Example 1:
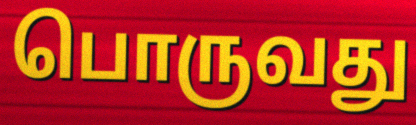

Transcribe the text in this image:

பொருவது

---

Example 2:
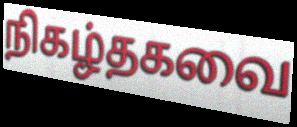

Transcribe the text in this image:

நிகழ்தகவை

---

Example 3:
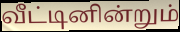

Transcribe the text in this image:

வீட்டினின்றும்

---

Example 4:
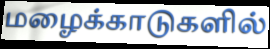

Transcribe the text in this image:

மழைக்காடுகளில்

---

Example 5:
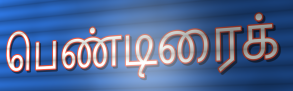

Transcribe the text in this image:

பெண்டிரைக்